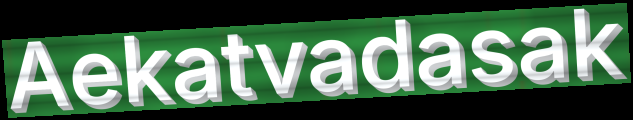
Aekatvadasak